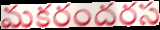
మకరందరస